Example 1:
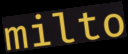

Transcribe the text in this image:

milto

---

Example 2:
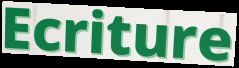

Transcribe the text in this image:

Ecriture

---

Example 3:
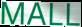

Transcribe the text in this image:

MALL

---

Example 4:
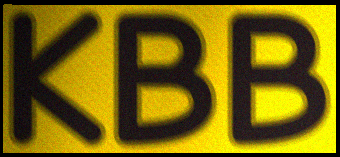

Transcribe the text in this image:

KBB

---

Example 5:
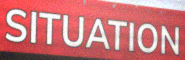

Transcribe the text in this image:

SITUATION